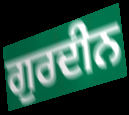
ਗੁਰਦੀਨ